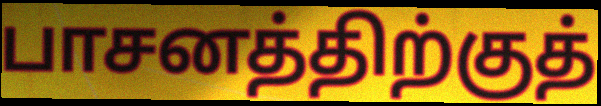
பாசனத்திற்குத்